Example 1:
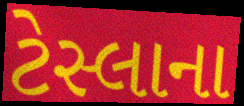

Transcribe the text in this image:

ટેસ્લાના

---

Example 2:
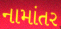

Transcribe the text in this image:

નામાંતર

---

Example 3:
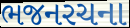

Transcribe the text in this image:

ભજનરચના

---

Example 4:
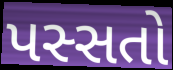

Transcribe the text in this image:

પસ્સતો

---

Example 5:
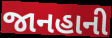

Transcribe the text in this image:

જાનહાની